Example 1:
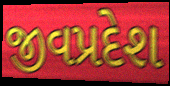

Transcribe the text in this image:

જીવપ્રદેશ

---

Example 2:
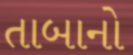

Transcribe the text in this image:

તાબાનો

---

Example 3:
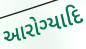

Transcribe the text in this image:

આરોગ્યાદિ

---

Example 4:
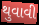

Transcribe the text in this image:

થુવાવી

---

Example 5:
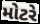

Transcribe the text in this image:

મોટરે